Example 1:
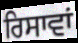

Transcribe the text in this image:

ਰਿਸਾਵਾਂ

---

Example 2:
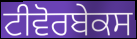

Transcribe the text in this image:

ਟੀਵੋਰਬੇਕਸ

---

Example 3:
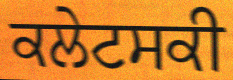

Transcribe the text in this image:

ਕਲੇਟਸਕੀ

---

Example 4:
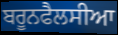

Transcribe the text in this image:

ਬਰੂਨਫੈਲਸੀਆ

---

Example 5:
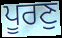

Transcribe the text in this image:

ਪੂਰਣੁ